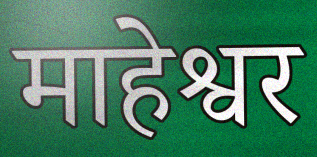
माहेश्वर